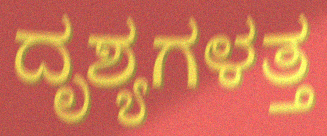
ದೃಶ್ಯಗಳತ್ತ